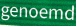
genoemd